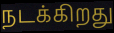
நடக்கிறது